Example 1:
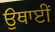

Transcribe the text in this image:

ਉਥਾਈਂ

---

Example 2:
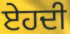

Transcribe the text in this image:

ਏਹਦੀ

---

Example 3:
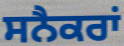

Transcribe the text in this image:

ਸਨੈਕਰਾਂ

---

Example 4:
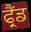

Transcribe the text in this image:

ਫ੍ਰੈਂਡ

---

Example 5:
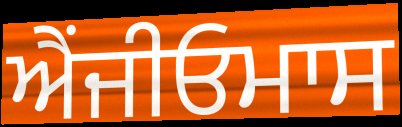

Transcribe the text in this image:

ਐਂਜੀਓਮਾਸ